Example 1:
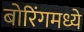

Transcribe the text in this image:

बोरिंगमध्ये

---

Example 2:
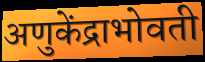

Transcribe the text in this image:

अणुकेंद्राभोवती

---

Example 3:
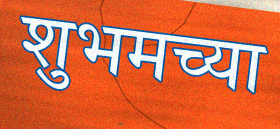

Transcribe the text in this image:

शुभमच्या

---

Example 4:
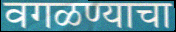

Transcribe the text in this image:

वगळण्याचा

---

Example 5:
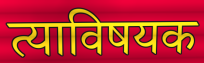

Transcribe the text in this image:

त्याविषयक